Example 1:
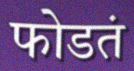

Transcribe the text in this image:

फोडतं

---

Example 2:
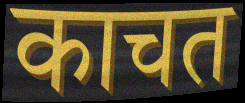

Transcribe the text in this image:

काचत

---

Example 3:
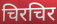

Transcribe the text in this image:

चिरचिर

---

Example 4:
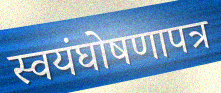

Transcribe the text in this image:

स्वयंघोषणापत्र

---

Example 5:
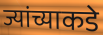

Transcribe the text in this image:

ज्यांच्याकडे